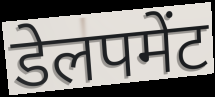
डेलपमेंट